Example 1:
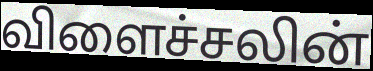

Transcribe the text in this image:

விளைச்சலின்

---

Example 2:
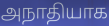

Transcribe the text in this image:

அநாதியாக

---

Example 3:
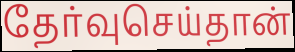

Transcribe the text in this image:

தேர்வுசெய்தான்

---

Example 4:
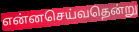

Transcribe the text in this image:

என்னசெய்வதென்று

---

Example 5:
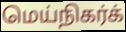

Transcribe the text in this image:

மெய்நிகர்க்